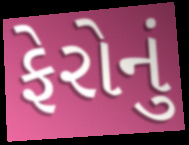
ફેરોનું